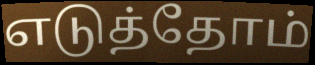
எடுத்தோம்